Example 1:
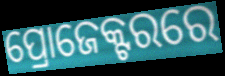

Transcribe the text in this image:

ପ୍ରୋଜେକ୍ଟରରେ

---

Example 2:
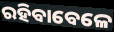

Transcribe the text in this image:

ରହିବାବେଳେ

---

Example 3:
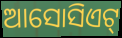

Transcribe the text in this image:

ଆସୋସିଏଟ୍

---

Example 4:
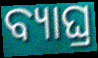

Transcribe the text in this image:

ବ୍ୟାଘ୍ର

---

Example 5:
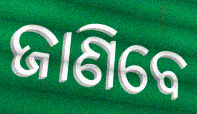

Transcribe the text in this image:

ଜାଣିବେ